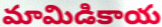
మామిడికాయ